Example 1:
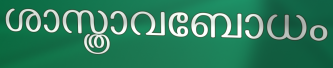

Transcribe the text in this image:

ശാസ്ത്രാവബോധം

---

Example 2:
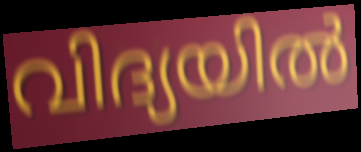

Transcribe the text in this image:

വിദ്യയിൽ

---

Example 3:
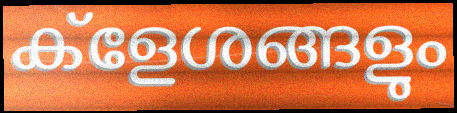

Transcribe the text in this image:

ക്ളേശങ്ങളും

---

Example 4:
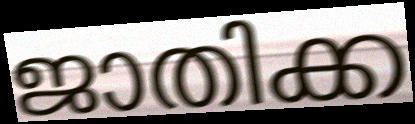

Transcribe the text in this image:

ജാതിക്ക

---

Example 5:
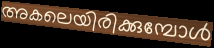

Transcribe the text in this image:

അകലെയിരിക്കുമ്പോൾ